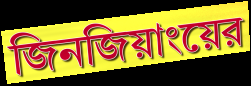
জিনজিয়াংয়ের